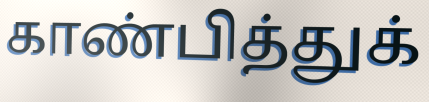
காண்பித்துக்